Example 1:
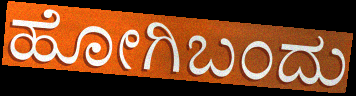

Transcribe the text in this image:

ಹೋಗಿಬಂದು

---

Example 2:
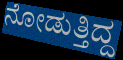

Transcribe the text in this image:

ನೋಡುತ್ತಿದ್ದ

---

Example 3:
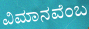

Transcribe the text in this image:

ವಿಮಾನವೆಂಬ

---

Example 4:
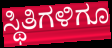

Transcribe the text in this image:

ಸ್ಥಿತಿಗಳಿಗೂ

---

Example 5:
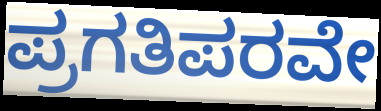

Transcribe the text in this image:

ಪ್ರಗತಿಪರವೇ